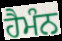
ਹੈਮੰਨ